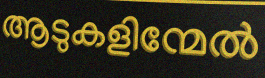
ആടുകളിന്മേൽ